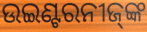
ଉଇଣ୍ଟରନୀଜ୍‌ଙ୍କ